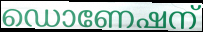
ഡൊണേഷന്